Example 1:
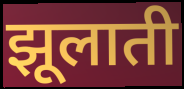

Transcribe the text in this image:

झूलाती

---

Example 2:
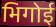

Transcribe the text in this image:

भिगोई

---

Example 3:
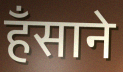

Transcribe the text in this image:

हँसाने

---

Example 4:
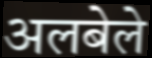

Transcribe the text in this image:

अलबेले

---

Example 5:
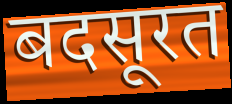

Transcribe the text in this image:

बदसूरत